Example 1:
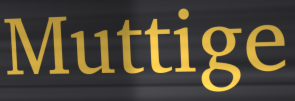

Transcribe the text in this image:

Muttige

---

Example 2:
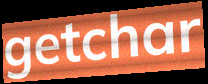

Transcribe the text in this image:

getchar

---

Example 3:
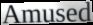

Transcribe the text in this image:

Amused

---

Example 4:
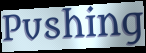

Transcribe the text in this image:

Pushing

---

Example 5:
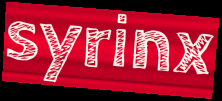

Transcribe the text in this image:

syrinx